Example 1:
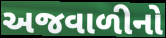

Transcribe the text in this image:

અજવાળીનો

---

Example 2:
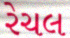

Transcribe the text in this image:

રેચલ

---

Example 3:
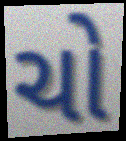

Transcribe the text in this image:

ચો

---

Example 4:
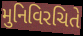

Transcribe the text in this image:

મુનિવિરચિતે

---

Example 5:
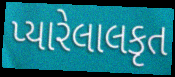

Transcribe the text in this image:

પ્યારેલાલકૃત